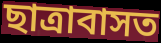
ছাত্ৰাবাসত